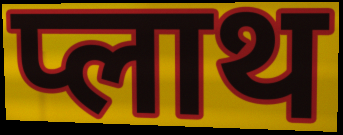
प्लाथ